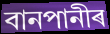
বানপানীৰ